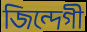
জিন্দেগী